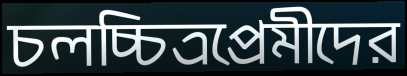
চলচ্চিত্রপ্রেমীদের